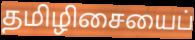
தமிழிசையைப்